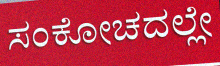
ಸಂಕೋಚದಲ್ಲೇ